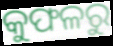
କୁଫଳରୁ